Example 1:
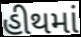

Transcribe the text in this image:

હીથમાં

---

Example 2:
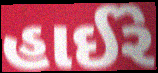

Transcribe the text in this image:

હાઈરે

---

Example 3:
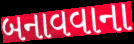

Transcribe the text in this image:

બનાવવાના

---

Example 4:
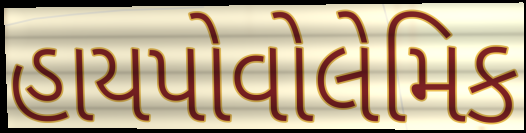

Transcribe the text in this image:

હાયપોવોલેમિક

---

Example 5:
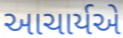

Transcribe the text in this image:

આચાર્યએ